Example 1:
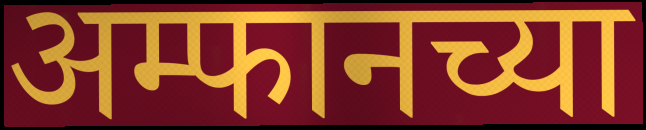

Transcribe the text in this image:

अम्फानच्या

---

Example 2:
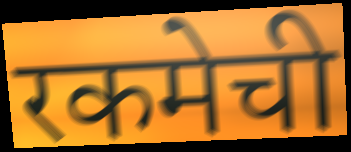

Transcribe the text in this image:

रकमेची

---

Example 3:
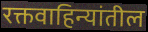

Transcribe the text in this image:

रक्तवाहिन्यांतील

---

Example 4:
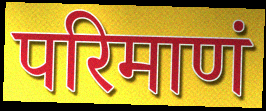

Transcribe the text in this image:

परिमाणं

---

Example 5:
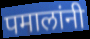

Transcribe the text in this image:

पमालांनी